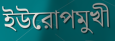
ইউরোপমুখী